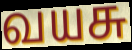
வயசு